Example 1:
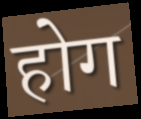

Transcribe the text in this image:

होग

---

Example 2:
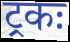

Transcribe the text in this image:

ट्रकः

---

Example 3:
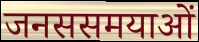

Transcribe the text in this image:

जनससमयाओं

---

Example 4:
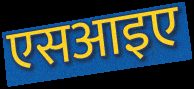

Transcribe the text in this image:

एसआइए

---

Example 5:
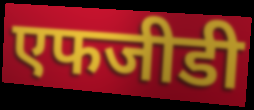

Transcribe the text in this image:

एफजीडी